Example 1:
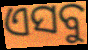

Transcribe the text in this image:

ଏସବୁ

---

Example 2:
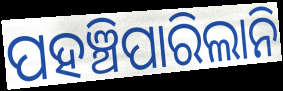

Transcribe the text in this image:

ପହଞ୍ଚିପାରିଲାନି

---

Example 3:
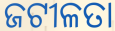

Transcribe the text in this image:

ଜଟୀଳତା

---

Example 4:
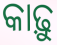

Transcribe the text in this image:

କାଢ଼ୁ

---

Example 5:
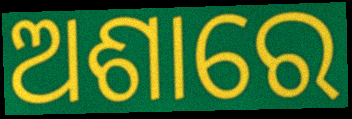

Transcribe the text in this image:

ଅଶାରେ